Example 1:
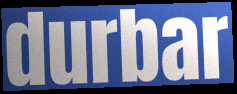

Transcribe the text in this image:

durbar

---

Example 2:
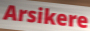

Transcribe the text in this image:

Arsikere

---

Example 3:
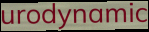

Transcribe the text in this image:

urodynamic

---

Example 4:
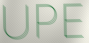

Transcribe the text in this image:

UPE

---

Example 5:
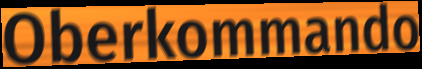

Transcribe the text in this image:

Oberkommando